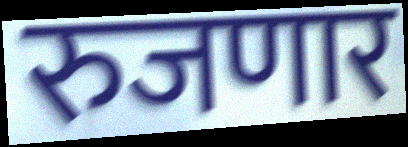
रुजणार